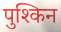
पुश्किन